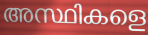
അസ്ഥികളെ